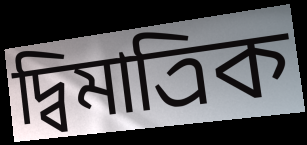
দ্বিমাত্ৰিক